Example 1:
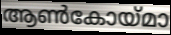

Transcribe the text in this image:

ആൺകോയ്മാ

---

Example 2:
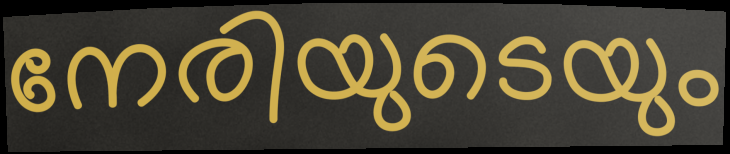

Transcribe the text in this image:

നേരിയുടെയും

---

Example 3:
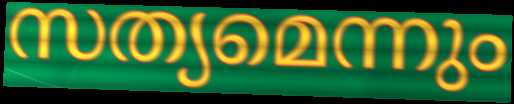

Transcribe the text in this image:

സത്യമെന്നും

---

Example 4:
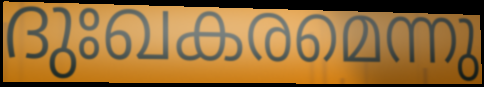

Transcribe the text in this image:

ദുഃഖകരമെന്നു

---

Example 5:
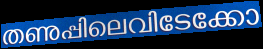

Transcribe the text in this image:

തണുപ്പിലെവിടേക്കോ